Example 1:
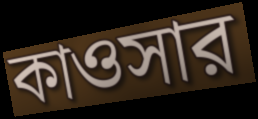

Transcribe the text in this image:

কাওসার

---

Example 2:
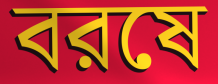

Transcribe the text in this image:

বরষে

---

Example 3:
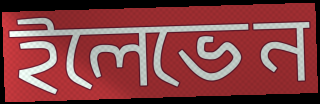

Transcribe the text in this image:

ইলেভেন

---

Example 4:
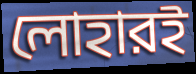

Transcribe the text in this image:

লোহারই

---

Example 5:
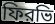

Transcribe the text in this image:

ফিরভি